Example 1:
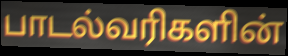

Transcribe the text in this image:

பாடல்வரிகளின்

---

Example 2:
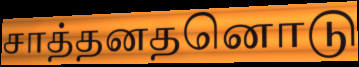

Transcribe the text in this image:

சாத்தனதனொடு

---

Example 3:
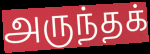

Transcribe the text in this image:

அருந்தக்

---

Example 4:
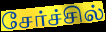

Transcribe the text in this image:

சேர்ச்சில்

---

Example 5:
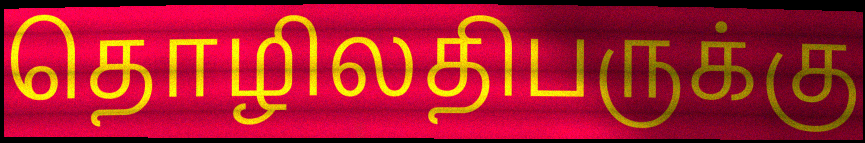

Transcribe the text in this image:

தொழிலதிபருக்கு